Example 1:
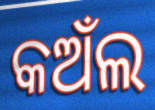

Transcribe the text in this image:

କଅଁଲ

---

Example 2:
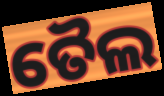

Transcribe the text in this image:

ତୈଲ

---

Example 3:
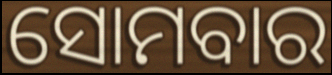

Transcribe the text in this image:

ସୋମବାର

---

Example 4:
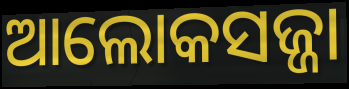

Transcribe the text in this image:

ଆଲୋକସଜ୍ଜା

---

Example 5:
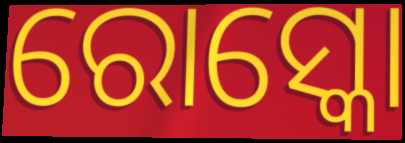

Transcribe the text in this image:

ରୋସ୍କୋ